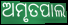
ଅମୃତପାଲ